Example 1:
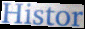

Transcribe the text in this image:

Histor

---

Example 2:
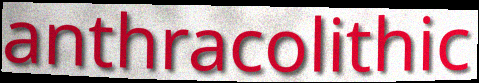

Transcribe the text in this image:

anthracolithic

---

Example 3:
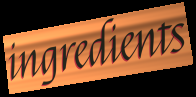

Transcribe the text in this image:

ingredients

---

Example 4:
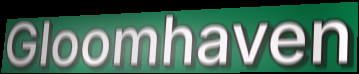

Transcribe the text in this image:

Gloomhaven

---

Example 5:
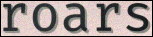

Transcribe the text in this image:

roars